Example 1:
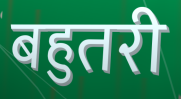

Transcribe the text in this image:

बहुतरी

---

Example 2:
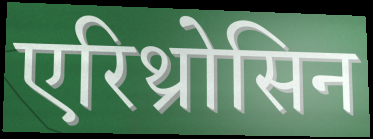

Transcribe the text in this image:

एरिथ्रोसिन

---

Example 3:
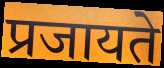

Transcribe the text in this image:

प्रजायते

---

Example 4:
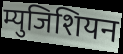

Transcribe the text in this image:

म्‍युजिशियन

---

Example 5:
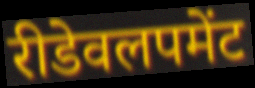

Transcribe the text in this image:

रीडेवलपमेंट